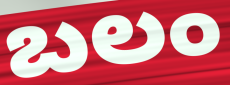
బలం